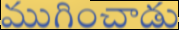
ముగించాడు